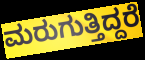
ಮರುಗುತ್ತಿದ್ದರೆ